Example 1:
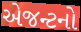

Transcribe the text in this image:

એજન્ટનો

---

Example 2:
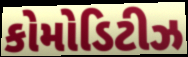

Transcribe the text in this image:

કોમોડિટીઝ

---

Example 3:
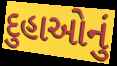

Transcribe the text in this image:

દુહાઓનું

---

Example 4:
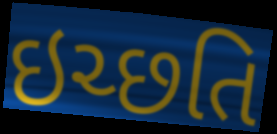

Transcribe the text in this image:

ઇચ્છતિ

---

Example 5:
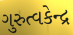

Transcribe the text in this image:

ગુરુત્વકેન્દ્ર